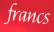
francs